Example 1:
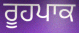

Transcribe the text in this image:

ਰੂਹਪਾਕ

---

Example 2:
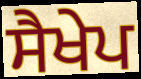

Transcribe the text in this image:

ਸੈਖੇਪ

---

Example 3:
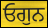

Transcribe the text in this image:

ਓਗੁਨ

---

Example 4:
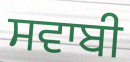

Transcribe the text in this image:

ਸਵਾਬੀ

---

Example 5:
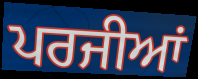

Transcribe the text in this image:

ਪਰਜੀਆਂ